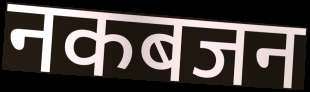
नकबजन